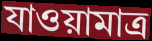
যাওয়ামাত্র